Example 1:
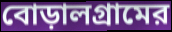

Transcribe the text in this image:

বোড়ালগ্রামের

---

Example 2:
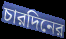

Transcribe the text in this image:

চারদিনের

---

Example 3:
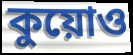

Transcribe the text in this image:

কুয়োও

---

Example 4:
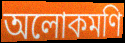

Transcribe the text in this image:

অলোকমণি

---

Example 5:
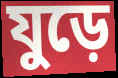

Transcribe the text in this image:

যুড়ে